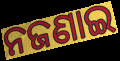
ନଜଣାଇ